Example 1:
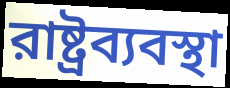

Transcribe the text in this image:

রাষ্ট্রব্যবস্থা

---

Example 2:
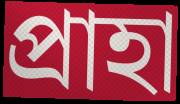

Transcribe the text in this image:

প্রাহা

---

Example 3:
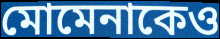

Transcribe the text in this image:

মোমেনাকেও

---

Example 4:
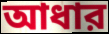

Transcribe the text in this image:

আধার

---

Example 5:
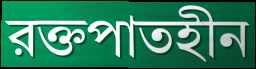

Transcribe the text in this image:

রক্তপাতহীন